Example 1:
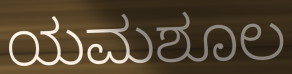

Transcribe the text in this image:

ಯಮಶೂಲ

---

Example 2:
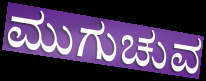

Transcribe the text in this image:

ಮುಗುಚುವ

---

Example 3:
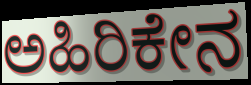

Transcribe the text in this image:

ಅಹಿರಿಕೇನ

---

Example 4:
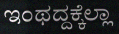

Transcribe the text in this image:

ಇಂಥದ್ದಕ್ಕೆಲ್ಲಾ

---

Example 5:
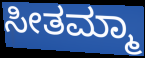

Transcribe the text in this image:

ಸೀತಮ್ಮಾ